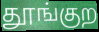
தூங்குற